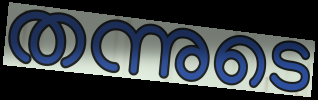
തന്നുടെ